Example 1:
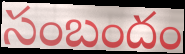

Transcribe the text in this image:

సంబందం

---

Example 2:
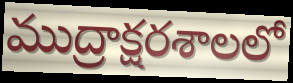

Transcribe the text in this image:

ముద్రాక్షరశాలలో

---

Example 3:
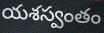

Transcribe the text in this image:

యశస్వంతం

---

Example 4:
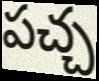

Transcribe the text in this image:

పచ్చ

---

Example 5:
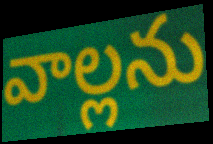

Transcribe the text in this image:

వాల్లను